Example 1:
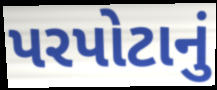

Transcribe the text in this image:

પરપોટાનું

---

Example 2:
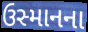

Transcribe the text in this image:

ઉસ્માનના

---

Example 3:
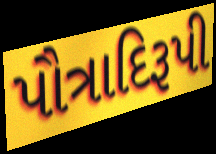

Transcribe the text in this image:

પૌત્રાદિરૂપી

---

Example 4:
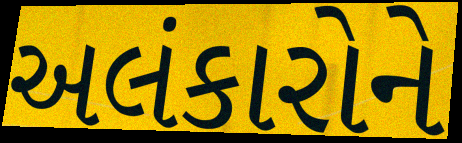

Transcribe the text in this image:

અલંકારોને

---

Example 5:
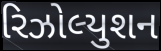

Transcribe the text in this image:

રિઝોલ્યુશન